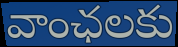
వాంఛలకు